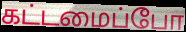
கட்டமைப்போ